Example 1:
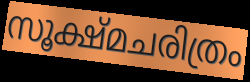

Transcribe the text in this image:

സൂക്ഷ്മചരിത്രം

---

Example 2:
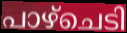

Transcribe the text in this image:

പാഴ്ചെടി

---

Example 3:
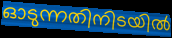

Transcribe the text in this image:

ഓടുന്നതിനിടയിൽ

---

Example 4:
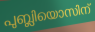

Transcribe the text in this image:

പുബ്ലിയൊസിന്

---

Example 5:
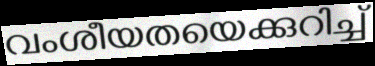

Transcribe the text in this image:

വംശീയതയെക്കുറിച്ച്